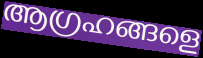
ആഗ്രഹങ്ങളെ